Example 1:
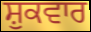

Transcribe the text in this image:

ਸ਼ੁਕਵਾਰ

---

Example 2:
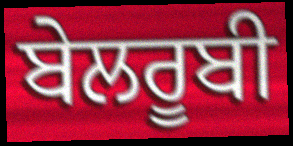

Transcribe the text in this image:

ਬੇਲਰੂਬੀ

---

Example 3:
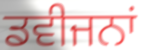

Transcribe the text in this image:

ਡਵੀਜਨਾਂ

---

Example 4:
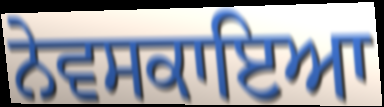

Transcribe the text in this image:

ਨੇਵਸਕਾਇਆ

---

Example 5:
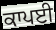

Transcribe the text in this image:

ਕਾਪਈ